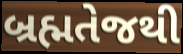
બ્રહ્મતેજથી